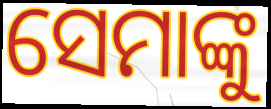
ସେମାଙ୍କୁ